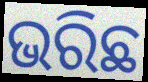
ଭରିଛ